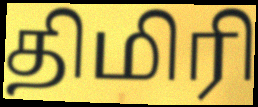
திமிரி